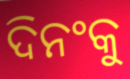
ଦିନଂକୁ